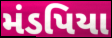
મંડપિયા